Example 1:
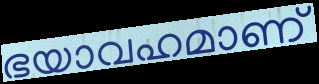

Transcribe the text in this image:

ഭയാവഹമാണ്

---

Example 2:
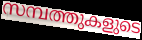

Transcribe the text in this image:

സമ്പത്തുകളുടെ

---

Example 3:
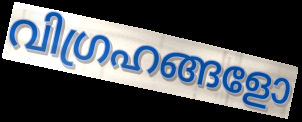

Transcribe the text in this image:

വിഗ്രഹങ്ങളോ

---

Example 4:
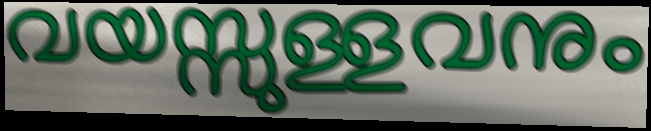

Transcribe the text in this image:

വയസ്സുള്ളവനും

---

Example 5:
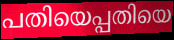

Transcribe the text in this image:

പതിയെപ്പതിയെ